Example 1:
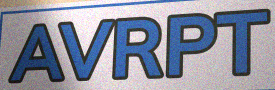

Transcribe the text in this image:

AVRPT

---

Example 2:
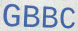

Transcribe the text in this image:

GBBC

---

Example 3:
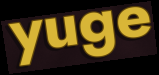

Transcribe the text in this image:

yuge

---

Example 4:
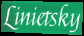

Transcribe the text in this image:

Linietsky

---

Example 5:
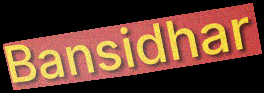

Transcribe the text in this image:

Bansidhar